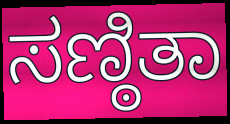
ಸಣ್ಠಿತಾ